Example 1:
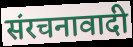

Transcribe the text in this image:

संरचनावादी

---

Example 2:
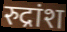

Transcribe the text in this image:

रुद्रांश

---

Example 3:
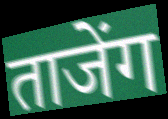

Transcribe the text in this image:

ताजेंग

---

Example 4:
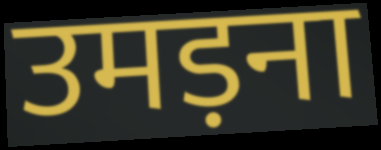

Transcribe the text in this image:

उमड़ना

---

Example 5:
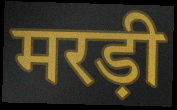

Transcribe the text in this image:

मरड़ी